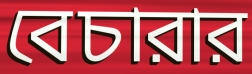
বেচারার